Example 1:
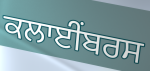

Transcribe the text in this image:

ਕਲਾਈਂਬਰਸ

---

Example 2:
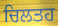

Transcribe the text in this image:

ਚਿਲਤਹ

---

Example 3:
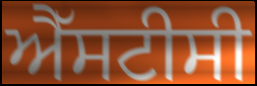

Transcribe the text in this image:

ਐੱਸਟੀਸੀ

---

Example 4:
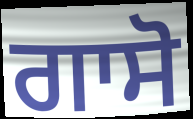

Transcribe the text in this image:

ਗਾਸੋ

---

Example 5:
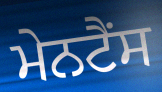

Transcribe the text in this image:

ਮੇਨਟੈਂਸ